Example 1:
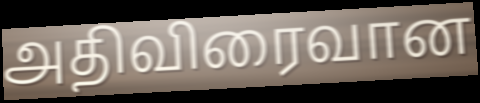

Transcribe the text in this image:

அதிவிரைவான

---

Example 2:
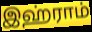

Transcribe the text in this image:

இஹ்ராம்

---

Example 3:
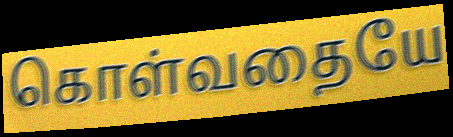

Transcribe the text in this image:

கொள்வதையே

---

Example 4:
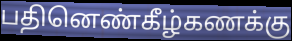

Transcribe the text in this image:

பதினெண்கீழ்கணக்கு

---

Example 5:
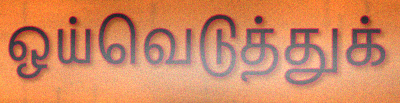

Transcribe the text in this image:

ஒய்வெடுத்துக்